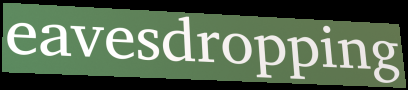
eavesdropping